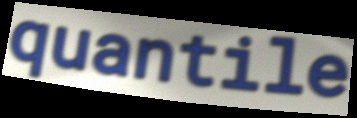
quantile